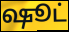
ஷூட்